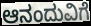
ಆನಂದುವಿಗೆ